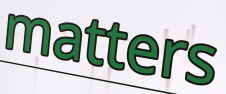
matters